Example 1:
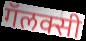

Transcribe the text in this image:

गॅलक्सी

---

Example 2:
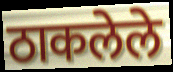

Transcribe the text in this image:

ठाकलेले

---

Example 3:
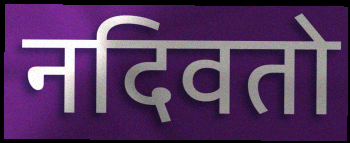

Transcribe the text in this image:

नदिवतो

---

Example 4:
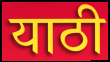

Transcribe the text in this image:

याठी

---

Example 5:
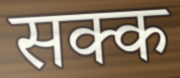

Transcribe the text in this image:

सक्क